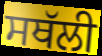
ਸਥੱਲੀ